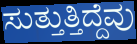
ಸುತ್ತುತ್ತಿದ್ದೆವು